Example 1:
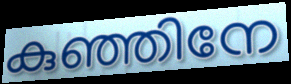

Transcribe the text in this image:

കുഞ്ഞിനേ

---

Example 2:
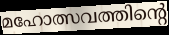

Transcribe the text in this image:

മഹോത്സവത്തിന്റെ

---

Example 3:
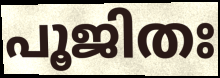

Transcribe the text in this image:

പൂജിതഃ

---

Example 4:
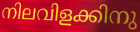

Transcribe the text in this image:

നിലവിളക്കിനു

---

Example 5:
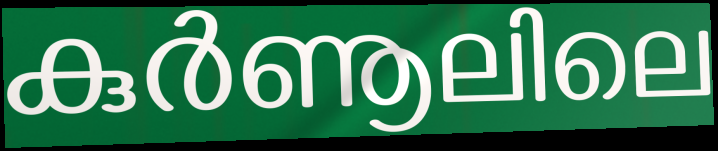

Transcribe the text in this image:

കുർണൂലിലെ